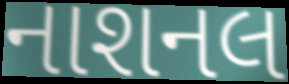
નાશનલ